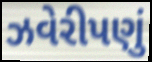
ઝવેરીપણું